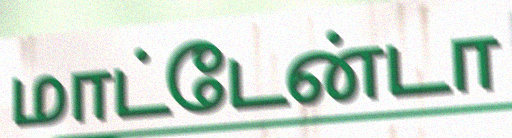
மாட்டேன்டா